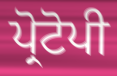
ਪ੍ਰੋਟੋਪੀ